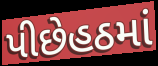
પીછેહઠમાં